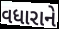
વધારાને